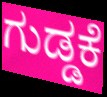
ಗುಡ್ಡಕೆ